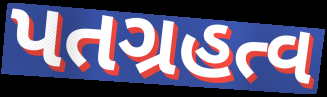
પતગ્રહત્વ